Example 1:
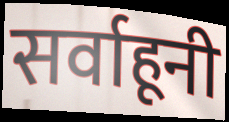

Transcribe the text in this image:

सर्वाहूनी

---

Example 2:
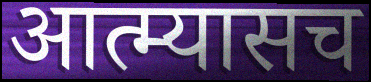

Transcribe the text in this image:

आत्म्यासच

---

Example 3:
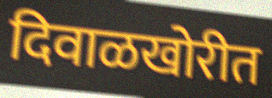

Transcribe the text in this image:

दिवाळखोरीत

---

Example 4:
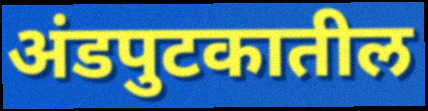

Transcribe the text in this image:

अंडपुटकातील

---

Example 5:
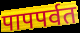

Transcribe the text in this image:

पापपर्वत